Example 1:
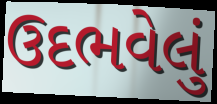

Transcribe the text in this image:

ઉદભવેલું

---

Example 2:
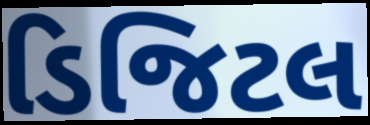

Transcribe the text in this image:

ડિજિટલ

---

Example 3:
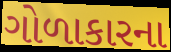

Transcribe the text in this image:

ગોળાકારના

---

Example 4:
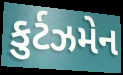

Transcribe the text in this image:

કુર્ટઝમેન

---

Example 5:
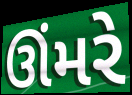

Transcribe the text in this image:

ઊંમરે